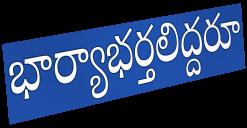
భార్యాభర్తలిద్దరూ